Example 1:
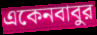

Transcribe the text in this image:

একেনবাবুর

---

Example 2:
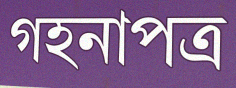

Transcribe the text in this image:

গহনাপত্র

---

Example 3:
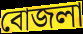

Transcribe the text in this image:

বোজলা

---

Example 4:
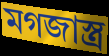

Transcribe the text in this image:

মগজাস্ত্র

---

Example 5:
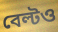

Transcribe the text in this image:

বেল্টও